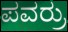
ಪವರ್ರು